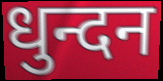
धुन्दन